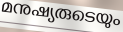
മനുഷ്യരുടെയും